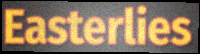
Easterlies